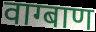
वाग्बाण